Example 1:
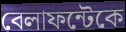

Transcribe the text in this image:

বেলাফন্টেকে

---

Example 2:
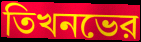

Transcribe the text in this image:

তিখনভের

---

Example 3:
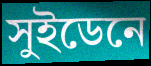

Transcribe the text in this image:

সুইডেনে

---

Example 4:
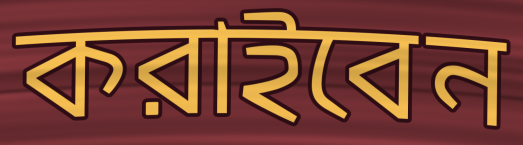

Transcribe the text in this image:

করাইবেন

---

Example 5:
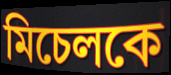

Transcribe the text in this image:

মিচেলকে